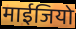
माईजियो